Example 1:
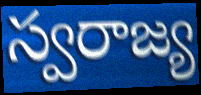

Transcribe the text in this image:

స్వరాజ్య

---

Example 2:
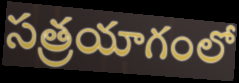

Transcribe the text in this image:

సత్రయాగంలో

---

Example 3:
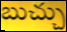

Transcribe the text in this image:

బుచ్చు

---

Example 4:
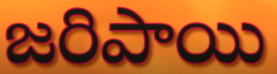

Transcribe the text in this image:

జరిపాయి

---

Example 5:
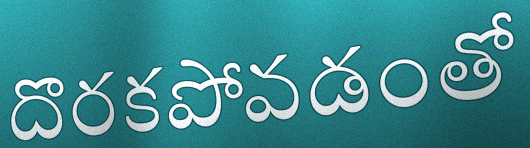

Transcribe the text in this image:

దొరకపోవడంతో